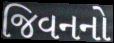
જિવનનો